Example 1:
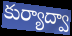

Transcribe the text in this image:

కుర్యాద్వా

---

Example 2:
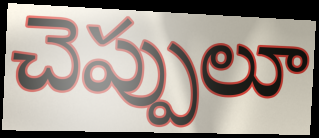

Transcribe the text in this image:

చెప్పులూ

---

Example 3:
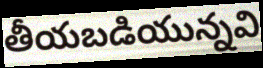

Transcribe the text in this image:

తీయబడియున్నవి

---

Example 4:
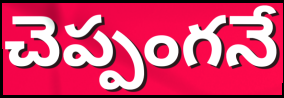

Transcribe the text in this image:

చెప్పంగనే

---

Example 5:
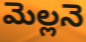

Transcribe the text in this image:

మెల్లనె